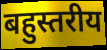
बहुस्तरीय